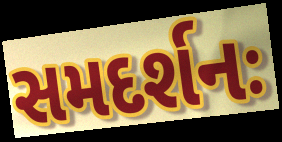
સમદર્શનઃ